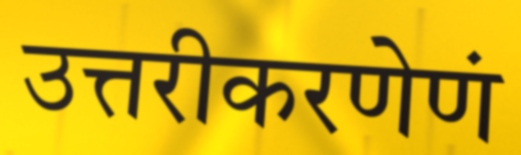
उत्तरीकरणेणं